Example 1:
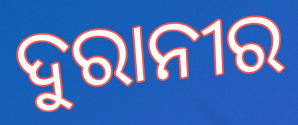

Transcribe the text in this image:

ଦୁରାନୀର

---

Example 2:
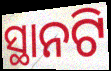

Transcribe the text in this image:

ସ୍ଥାନଟି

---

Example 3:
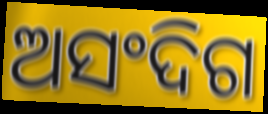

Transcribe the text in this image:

ଅସଂଦିଗ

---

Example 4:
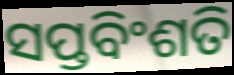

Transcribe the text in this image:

ସପ୍ତବିଂଶତି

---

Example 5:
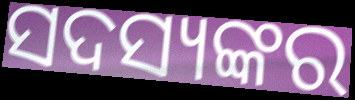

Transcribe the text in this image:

ସଦସ୍ୟଙ୍କର